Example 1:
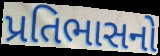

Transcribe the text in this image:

પ્રતિભાસનો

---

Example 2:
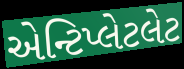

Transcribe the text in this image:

એન્ટિપ્લેટલેટ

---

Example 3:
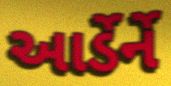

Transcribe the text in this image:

આર્ડેર્ને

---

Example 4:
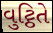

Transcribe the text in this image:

વુટ્ઠિતે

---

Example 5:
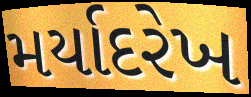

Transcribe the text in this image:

મર્યાદરેખ